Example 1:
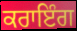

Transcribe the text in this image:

ਕਰਾਇੰਗ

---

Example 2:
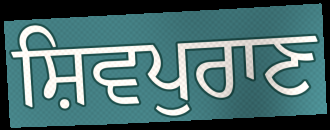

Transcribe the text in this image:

ਸ਼ਿਵਪੁਰਾਣ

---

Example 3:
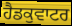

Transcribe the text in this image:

ਹੈਡਕੁਵਾਟਰ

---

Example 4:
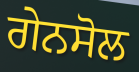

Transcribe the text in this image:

ਗੇਨਸੋਲ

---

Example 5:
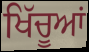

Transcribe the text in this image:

ਖਿੱਚੂਆਂ